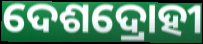
ଦେଶଦ୍ରୋହୀ